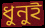
ধুনুই